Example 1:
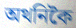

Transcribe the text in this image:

অথনিকৈ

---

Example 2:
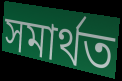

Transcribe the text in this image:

সমাৰ্থত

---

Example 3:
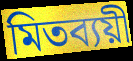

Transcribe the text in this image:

মিতব্যয়ী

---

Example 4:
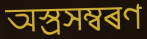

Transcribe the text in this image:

অস্ত্ৰসম্বৰণ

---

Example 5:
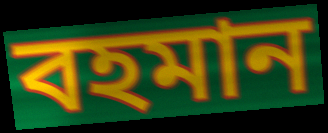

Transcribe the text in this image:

বহমান